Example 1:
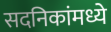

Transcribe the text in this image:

सदनिकांमध्ये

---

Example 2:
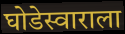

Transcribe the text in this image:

घोडेस्वाराला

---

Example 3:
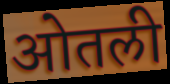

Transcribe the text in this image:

ओतली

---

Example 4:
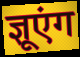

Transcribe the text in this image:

ज्ञूएंग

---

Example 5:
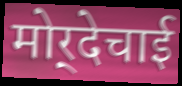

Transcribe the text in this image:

मोर्देचाई